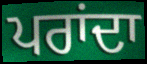
ਪਰਾਂਦਾ